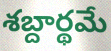
శబ్దార్థమే